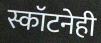
स्कॉटनेही